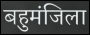
बहुमंजिला